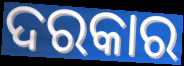
ଦରକାର